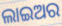
ଲାଇଅର